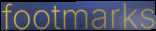
footmarks